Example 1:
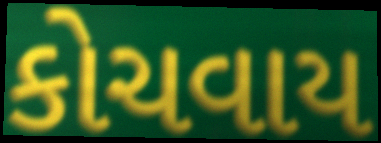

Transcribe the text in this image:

કોચવાય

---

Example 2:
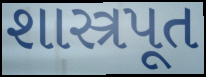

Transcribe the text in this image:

શાસ્ત્રપૂત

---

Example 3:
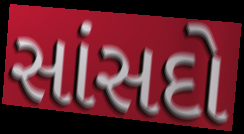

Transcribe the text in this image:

સાંસદો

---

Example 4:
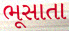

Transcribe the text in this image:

ભૂસાતા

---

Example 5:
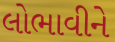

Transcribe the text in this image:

લોભાવીને